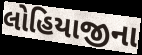
લોહિયાજીના